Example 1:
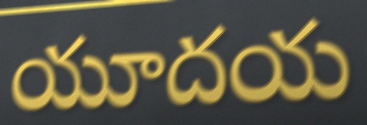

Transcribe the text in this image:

యూదయ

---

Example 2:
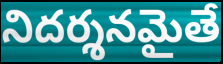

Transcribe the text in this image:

నిదర్శనమైతే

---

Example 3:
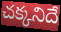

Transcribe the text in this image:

చక్కనిదే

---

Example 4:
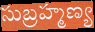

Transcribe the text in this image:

సుబ్రహ్మణ్య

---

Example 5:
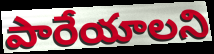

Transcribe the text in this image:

పారేయాలని